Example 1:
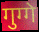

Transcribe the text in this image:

गुग्गे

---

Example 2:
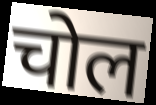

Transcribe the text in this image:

चोल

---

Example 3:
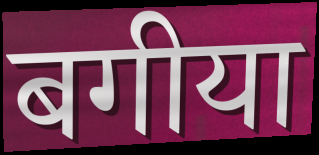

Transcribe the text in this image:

बगीया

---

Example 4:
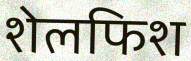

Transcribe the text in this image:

शेलफिश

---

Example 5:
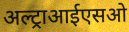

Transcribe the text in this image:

अल्ट्राआईएसओ